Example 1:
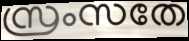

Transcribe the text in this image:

സ്രംസതേ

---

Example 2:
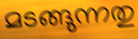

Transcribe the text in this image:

മടങ്ങുന്നതു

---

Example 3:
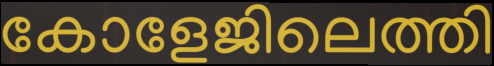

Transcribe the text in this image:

കോളേജിലെത്തി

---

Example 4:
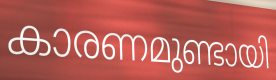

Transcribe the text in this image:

കാരണമുണ്ടായി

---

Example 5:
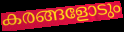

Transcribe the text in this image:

കരങ്ങളോടും